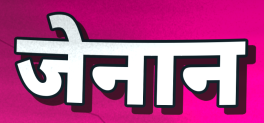
जेनान